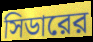
সিডারের